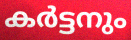
കർട്ടനും